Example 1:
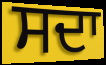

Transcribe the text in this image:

ਸਦਾ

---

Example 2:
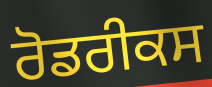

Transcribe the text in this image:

ਰੋਡਰੀਕਸ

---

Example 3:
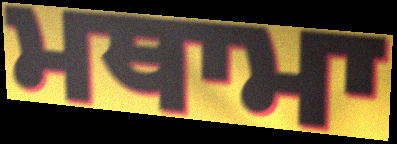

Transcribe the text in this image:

ਮਥਾਮਾ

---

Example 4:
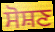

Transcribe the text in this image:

ਸੋਸ਼ਣ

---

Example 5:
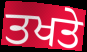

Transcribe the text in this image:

ਤਖਤੇ